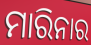
ମାରିନାର